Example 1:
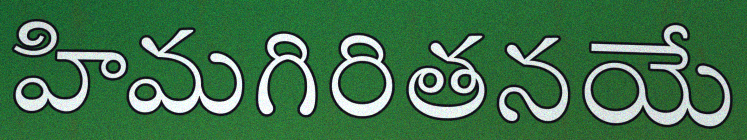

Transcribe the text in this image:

హిమగిరితనయే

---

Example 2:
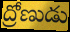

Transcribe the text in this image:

ద్రోణుడు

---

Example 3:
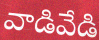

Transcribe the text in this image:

వాడివేడి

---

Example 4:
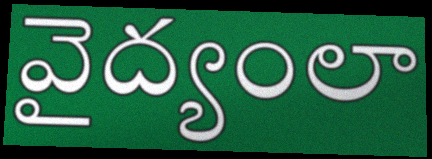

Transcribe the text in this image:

వైద్యంలా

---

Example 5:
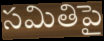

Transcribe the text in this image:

సమితిపై